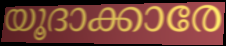
യൂദാക്കാരേ